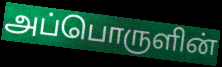
அப்பொருளின்